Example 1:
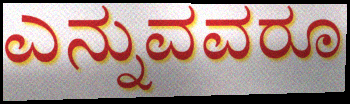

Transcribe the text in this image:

ಎನ್ನುವವರೂ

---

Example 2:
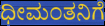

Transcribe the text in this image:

ಧೀಮಂತನಿಗೆ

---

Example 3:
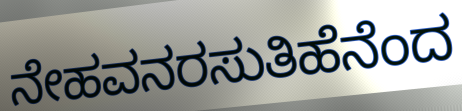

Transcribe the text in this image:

ನೇಹವನರಸುತಿಹೆನೆಂದ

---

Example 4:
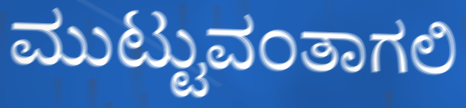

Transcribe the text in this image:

ಮುಟ್ಟುವಂತಾಗಲಿ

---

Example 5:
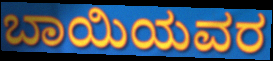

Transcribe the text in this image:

ಬಾಯಿಯವರ